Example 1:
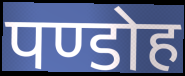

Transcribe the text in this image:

पण्डोह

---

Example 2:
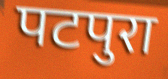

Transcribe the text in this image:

पटपुरा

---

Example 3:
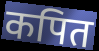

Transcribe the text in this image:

कपित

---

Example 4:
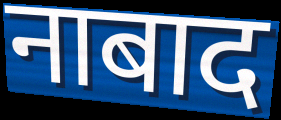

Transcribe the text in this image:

नाबाद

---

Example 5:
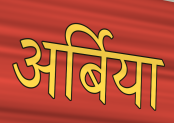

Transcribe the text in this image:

अर्बिया